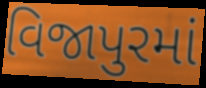
વિજાપુરમાં